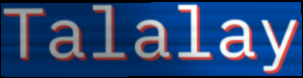
Talalay